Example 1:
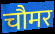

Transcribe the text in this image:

चौमर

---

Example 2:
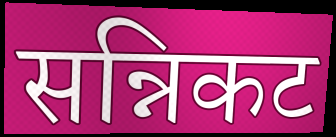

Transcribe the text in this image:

सन्निकट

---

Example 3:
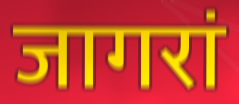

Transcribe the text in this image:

जागरां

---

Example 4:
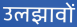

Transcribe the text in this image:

उलझावों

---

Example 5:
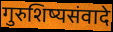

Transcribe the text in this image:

गुरुशिष्यसंवादे